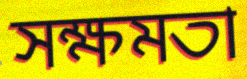
সক্ষমতা